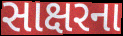
સાક્ષરના